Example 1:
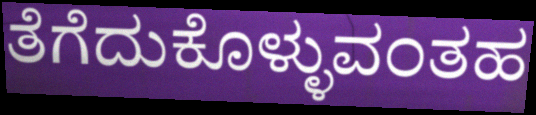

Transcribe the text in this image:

ತೆಗೆದುಕೊಳ್ಳುವಂತಹ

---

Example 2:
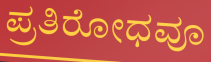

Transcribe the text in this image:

ಪ್ರತಿರೋಧವೂ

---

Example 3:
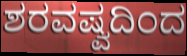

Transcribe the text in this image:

ಶರವಷ್ವದಿಂದ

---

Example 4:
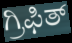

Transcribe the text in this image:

ಗ್ರಿಫಿತ್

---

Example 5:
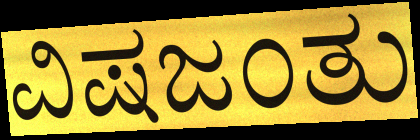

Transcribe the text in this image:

ವಿಷಜಂತು